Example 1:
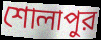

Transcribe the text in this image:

শোলাপুর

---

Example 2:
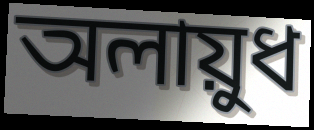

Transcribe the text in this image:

অলায়ুধ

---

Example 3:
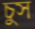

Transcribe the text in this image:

চুস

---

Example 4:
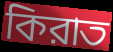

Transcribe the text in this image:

কিরাত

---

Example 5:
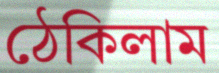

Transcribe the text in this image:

ঠেকিলাম